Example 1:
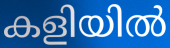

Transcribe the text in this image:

കളിയിൽ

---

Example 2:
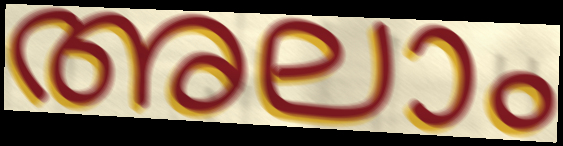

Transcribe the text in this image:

അലാം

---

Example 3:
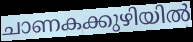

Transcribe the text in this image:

ചാണകക്കുഴിയിൽ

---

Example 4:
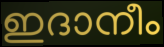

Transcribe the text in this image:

ഇദാനീം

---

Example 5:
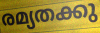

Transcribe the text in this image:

രമ്യതക്കു